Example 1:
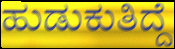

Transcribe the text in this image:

ಹುಡುಕುತಿದ್ದೆ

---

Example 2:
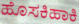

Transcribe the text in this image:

ಹೊಸಕಿಹಾಕಿ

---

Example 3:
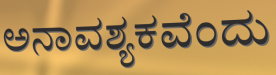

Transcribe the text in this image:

ಅನಾವಶ್ಯಕವೆಂದು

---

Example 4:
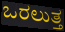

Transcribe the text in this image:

ಒರಲುತ್ತ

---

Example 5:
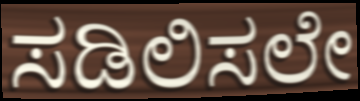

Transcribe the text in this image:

ಸಡಿಲಿಸಲೇ